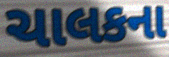
ચાલકના